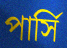
পার্সি